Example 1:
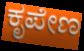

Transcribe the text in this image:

ಕೃಪೇಣ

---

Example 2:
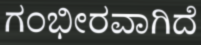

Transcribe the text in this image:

ಗಂಭೀರವಾಗಿದೆ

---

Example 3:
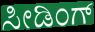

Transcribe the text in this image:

ಸೀಡಿಂಗ್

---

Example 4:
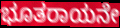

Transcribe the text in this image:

ಭೂತರಾಯನೇ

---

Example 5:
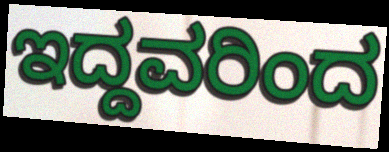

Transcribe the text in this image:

ಇದ್ದವರಿಂದ